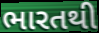
ભારતથી